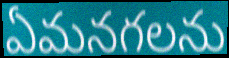
ఏమనగలను